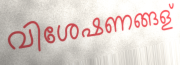
വിശേഷണങ്ങള്